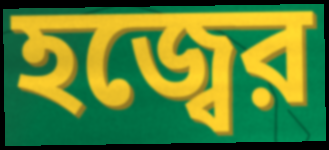
হজ্বের